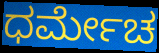
ಧರ್ಮೇಚ